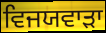
ਵਿਜਯਵਾੜਾ